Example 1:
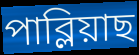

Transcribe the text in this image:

পাব্লিয়াছ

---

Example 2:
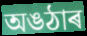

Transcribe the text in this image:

অঙঠাৰ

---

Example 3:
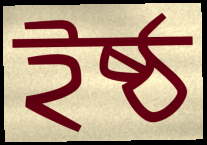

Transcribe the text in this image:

ইষ্ঠ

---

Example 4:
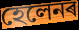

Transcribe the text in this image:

হেলেনৰ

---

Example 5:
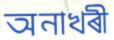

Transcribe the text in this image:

অনাখৰী